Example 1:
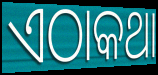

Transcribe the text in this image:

ଏଠାକଥା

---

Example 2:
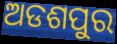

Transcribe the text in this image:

ଅଡଶପୁର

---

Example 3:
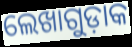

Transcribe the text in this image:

ଲେଖାଗୁଡ଼ାକ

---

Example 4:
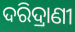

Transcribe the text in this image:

ଦରିଦ୍ରାଣୀ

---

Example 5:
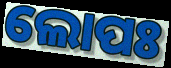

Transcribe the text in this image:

ଲୋପଃ